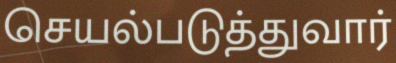
செயல்படுத்துவார்